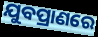
ଯୁବପ୍ରାଣରେ